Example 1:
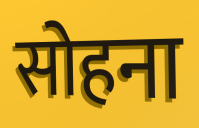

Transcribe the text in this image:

सोहना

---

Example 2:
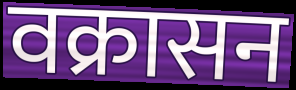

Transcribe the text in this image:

वक्रासन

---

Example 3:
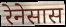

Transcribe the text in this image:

रेनेसास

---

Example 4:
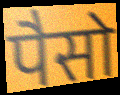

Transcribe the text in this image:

पैसो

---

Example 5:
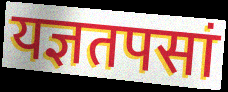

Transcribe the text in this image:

यज्ञतपसां